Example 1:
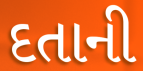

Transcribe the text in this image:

દતાની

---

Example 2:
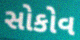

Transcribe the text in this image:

સોકોવ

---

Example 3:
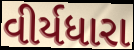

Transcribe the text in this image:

વીર્યધારા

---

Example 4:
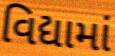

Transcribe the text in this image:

વિદ્યામાં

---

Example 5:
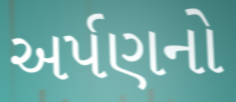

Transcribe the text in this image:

અર્પણનો